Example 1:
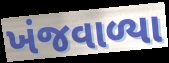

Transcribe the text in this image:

ખંજવાળ્યા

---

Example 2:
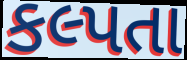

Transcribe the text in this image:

કલ્પતા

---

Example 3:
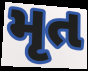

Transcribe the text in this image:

મૃત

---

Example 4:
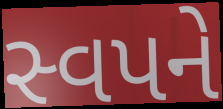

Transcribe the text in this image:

સ્વપને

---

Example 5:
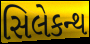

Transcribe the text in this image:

સિલેકન્થ